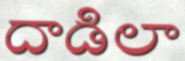
దాడిలా